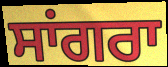
ਸਾਂਗਰਾ